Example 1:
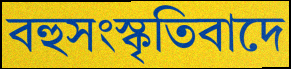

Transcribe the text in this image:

বহুসংস্কৃতিবাদে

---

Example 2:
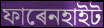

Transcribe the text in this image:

ফাৰেনহাইট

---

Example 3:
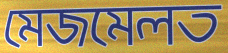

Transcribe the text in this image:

মেজমেলত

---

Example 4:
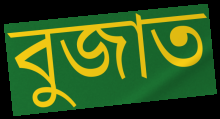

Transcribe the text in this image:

বুজাত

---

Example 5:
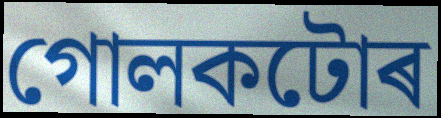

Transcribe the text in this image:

গোলকটোৰ